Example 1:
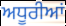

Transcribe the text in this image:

ਅਧੂਰੀਆਂ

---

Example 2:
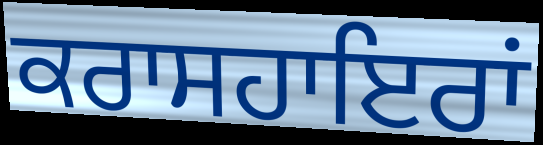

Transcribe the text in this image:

ਕਰਾਸਹਾਇਰਾਂ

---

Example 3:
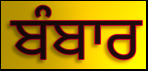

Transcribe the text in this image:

ਬੰਬਾਰ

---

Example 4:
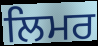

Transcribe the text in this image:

ਲਿਮਰ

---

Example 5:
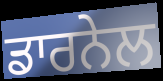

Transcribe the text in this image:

ਡਾਰਨੇਲ